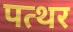
पत्थर